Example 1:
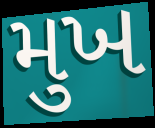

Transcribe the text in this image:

મુખ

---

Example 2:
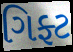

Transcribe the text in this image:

ગિફ્ટ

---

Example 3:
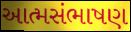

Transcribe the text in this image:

આત્મસંભાષણ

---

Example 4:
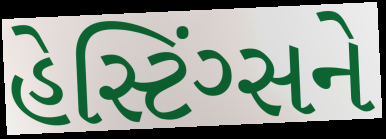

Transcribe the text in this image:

હેસ્ટિંગ્સને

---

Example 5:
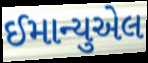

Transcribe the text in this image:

ઈમાન્યુએલ